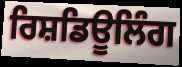
ਰਿਸ਼ਡਿਊਲਿੰਗ